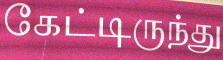
கேட்டிருந்து